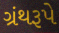
ગ્રંથરૂપે